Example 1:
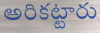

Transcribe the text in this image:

అరికట్టారు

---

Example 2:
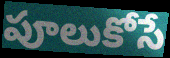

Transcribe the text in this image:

పూలుకోసే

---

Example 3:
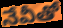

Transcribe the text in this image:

నేవీతో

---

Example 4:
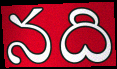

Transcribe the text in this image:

నది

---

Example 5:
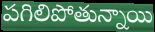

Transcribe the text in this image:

పగిలిపోతున్నాయి